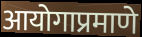
आयोगाप्रमाणे